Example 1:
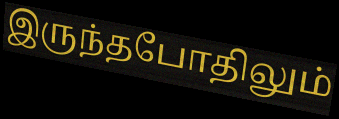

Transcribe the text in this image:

இருந்தபோதிலும்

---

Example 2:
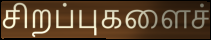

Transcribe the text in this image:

சிறப்புகளைச்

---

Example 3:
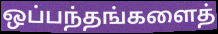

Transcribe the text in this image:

ஒப்பந்தங்களைத்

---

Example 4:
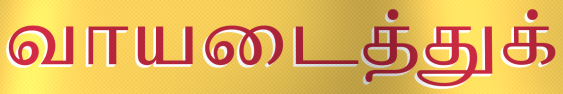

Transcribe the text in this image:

வாயடைத்துக்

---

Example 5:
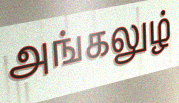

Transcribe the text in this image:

அங்கலுழ்